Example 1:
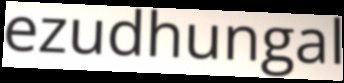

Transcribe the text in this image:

ezudhungal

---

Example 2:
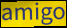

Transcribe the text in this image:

amigo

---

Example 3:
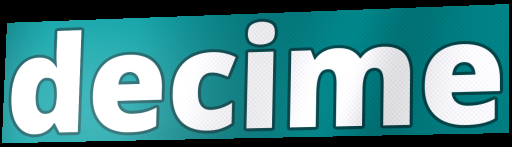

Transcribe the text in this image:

decime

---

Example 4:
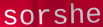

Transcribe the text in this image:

sorshe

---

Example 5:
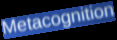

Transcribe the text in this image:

Metacognition